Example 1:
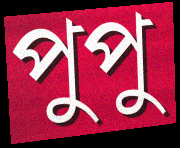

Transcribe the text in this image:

পুপু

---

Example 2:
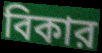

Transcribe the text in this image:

বিকার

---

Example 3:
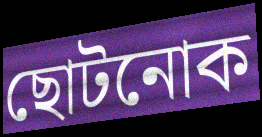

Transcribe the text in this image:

ছোটনোক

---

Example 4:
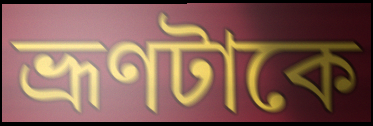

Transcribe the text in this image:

ভ্রূণটাকে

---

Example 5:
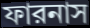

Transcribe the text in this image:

ফারনাস